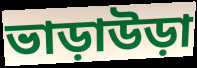
ভাড়াউড়া